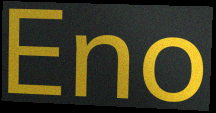
Eno